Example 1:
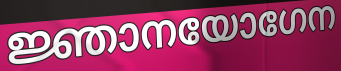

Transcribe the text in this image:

ജ്ഞാനയോഗേന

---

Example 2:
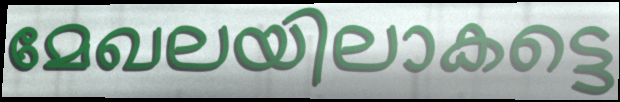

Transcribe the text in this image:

മേഖലയിലാകട്ടെ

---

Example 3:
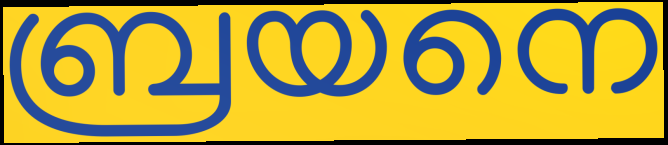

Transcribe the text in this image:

ബ്രയനെ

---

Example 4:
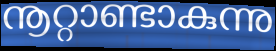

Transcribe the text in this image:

നൂറ്റാണ്ടാകുന്നു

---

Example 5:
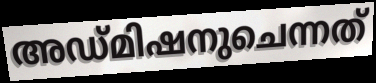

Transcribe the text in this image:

അഡ്മിഷനുചെന്നത്